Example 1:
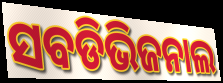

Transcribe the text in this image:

ସବଡିଭିଜନାଲ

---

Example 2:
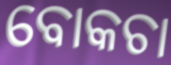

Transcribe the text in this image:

ବୋକଚା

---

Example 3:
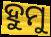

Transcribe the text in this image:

ହୁମୁ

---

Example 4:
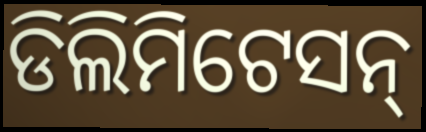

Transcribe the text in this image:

ଡିଲିମିଟେସନ୍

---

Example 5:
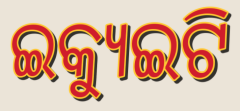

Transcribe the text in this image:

ଇକ୍ୟୁଇଟି